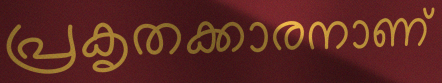
പ്രകൃതക്കാരനാണ്